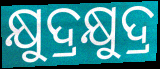
କ୍ଷୁଦ୍ରକ୍ଷୁଦ୍ର